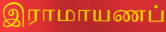
இராமாயணப்